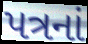
પત્રનાં